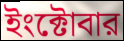
ইংক্টোবার